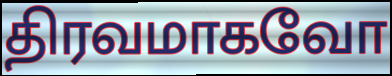
திரவமாகவோ